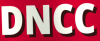
DNCC